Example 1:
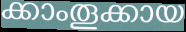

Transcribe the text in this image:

ക്കാംതൂക്കായ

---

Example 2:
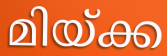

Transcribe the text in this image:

മിയ്ക്ക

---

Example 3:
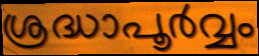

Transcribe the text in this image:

ശ്രദ്ധാപൂർവ്വം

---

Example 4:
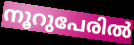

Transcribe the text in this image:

നൂറുപേരിൽ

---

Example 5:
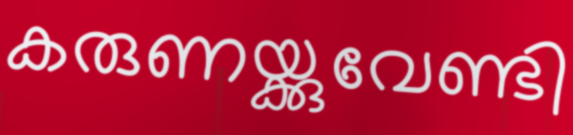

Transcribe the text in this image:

കരുണയ്ക്കുവേണ്ടി